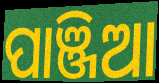
ପାଞ୍ଜିଆ